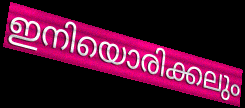
ഇനിയൊരിക്കലും